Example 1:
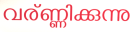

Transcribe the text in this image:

വര്ണ്ണിക്കുന്നു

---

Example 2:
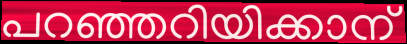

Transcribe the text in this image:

പറഞ്ഞറിയിക്കാന്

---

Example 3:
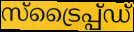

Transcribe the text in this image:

സ്ട്രൈപ്പ്ഡ്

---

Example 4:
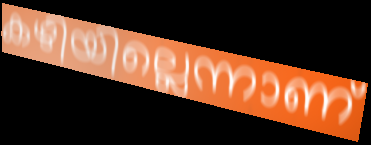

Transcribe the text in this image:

കഴിയില്ലെന്നാണ്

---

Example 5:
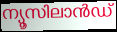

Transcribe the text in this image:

ന്യൂസിലാൻഡ്